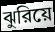
ঝুরিয়ে